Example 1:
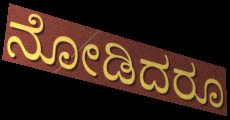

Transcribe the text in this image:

ನೋಡಿದರೂ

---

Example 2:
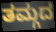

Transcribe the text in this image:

ತಮ್ಗದ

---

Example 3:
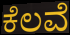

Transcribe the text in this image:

ಕೆಲವೆ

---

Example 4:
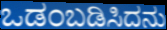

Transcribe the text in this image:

ಒಡಂಬಡಿಸಿದನು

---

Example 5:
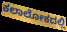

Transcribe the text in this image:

ಕಲಾಲೋಕದಲ್ಲಿ